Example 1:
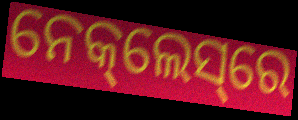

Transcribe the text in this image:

ନେକ୍‌ଲେସ୍‌ରେ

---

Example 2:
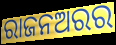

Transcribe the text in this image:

ରାଜନଅରର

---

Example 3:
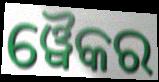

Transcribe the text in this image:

ୱୈକର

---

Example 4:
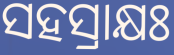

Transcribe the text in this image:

ସହସ୍ରାକ୍ଷଃ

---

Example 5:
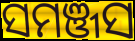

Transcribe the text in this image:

ସମଞ୍ଜସ